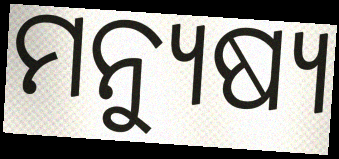
ମନ୍ୟୁଷ୍ୟ